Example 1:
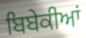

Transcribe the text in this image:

ਬਿਬੇਕੀਆਂ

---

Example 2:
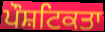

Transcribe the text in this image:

ਪੌਸ਼ਟਿਕਤਾ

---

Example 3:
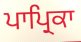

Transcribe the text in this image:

ਪਾਪ੍ਰਿਕਾ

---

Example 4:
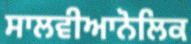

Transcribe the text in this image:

ਸਾਲਵੀਆਨੋਲਿਕ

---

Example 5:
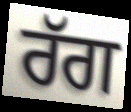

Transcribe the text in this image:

ਰੱਗ